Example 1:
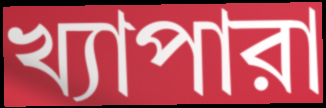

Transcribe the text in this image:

খ্যাপারা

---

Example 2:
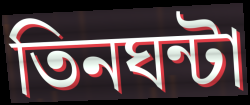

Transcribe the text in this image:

তিনঘন্টা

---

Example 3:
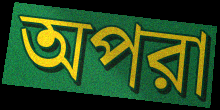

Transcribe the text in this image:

অপরা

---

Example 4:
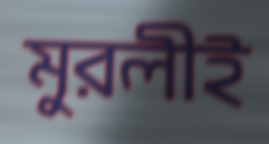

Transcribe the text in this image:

মুরলীই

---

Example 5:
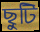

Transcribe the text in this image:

ছুটি